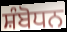
ਸ਼ੰਬੋਧਨ